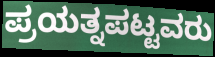
ಪ್ರಯತ್ನಪಟ್ಟವರು